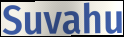
Suvahu